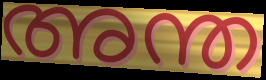
അന്ത